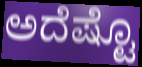
ಅದೆಷ್ಟೊ